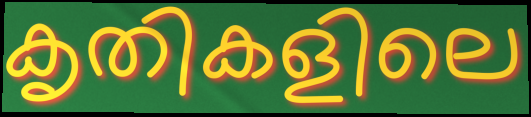
കൃതികളിലെ